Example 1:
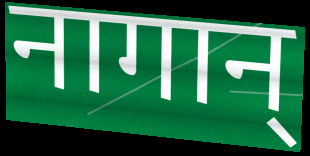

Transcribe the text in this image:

नागान्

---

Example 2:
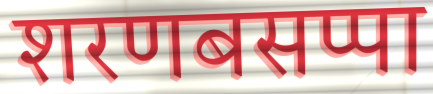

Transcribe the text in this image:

शरणबसप्पा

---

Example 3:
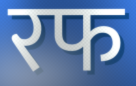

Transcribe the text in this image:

रफ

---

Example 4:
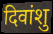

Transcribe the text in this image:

दिवांशु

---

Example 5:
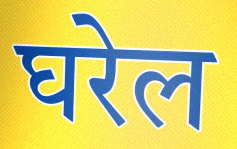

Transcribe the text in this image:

घरेल